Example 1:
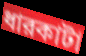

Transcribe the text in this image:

ধারকাটা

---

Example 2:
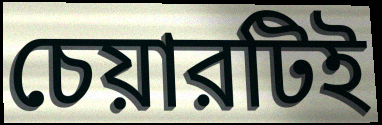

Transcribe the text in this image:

চেয়ারটিই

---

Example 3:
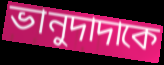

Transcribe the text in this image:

ভানুদাদাকে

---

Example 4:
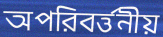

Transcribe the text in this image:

অপরিবর্ত্তনীয়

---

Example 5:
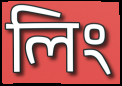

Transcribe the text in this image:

লিং